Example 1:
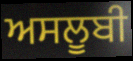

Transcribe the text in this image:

ਅਸਲੂਬੀ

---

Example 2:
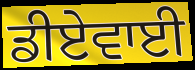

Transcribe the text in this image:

ਡੀਏਵਾਈ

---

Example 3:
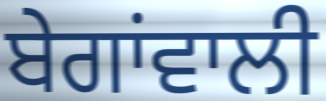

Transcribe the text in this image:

ਬੇਗਾਂਵਾਲੀ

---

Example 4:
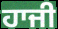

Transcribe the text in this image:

ਹਾਜੀ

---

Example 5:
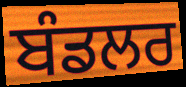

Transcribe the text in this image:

ਬੰਡਲਰ